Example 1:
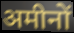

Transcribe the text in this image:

अमीनों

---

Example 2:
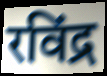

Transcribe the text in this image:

रविंद्र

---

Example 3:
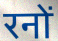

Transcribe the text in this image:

रनों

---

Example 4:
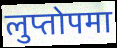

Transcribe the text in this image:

लुप्तोपमा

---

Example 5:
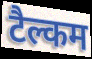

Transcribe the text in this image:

टैल्कम